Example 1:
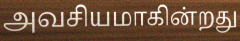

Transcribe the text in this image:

அவசியமாகின்றது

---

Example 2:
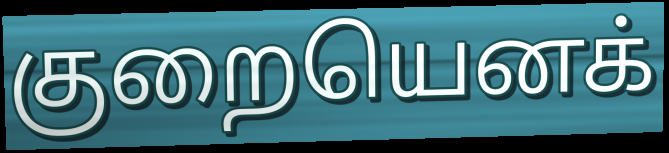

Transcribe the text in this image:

குறையெனக்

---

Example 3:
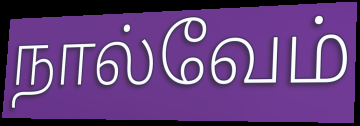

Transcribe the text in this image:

நால்வேம்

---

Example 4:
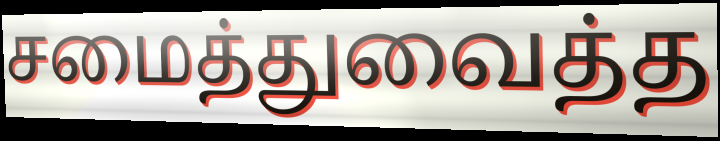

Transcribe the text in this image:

சமைத்துவைத்த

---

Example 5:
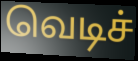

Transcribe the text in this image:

வெடிச்